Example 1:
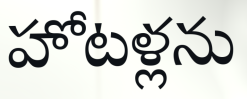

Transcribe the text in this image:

హోటళ్లను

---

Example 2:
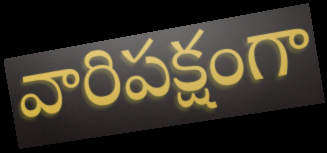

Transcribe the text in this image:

వారిపక్షంగా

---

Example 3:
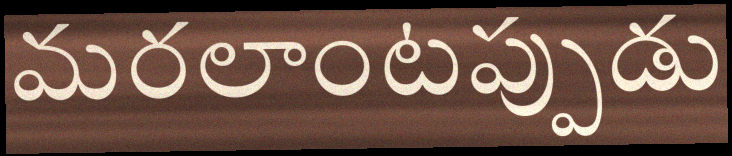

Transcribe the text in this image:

మరలాంటప్పుడు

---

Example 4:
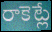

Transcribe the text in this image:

రాకెట్లే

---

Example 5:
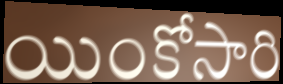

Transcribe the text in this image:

యింకోసారి